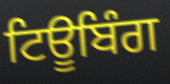
ਟਿਊਬਿੰਗ